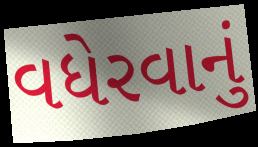
વધેરવાનું